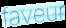
faveur